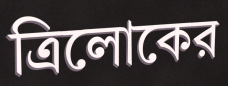
ত্রিলোকের